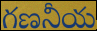
గణనీయ